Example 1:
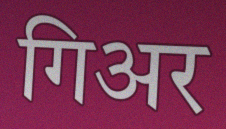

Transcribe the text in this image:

गिअर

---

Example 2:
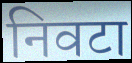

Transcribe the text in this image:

निवटा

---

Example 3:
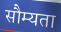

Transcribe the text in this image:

सौम्यता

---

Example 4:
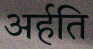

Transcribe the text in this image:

अर्हति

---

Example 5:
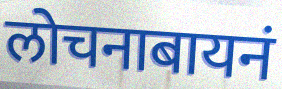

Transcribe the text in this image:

लोचनाबायनं